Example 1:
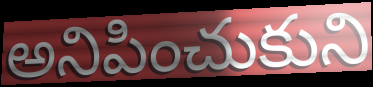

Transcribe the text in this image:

అనిపించుకుని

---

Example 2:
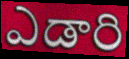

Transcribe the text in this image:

ఎడారి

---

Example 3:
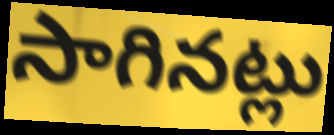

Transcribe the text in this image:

సాగినట్లు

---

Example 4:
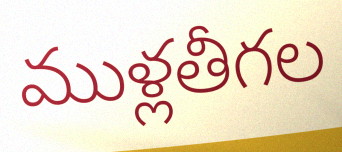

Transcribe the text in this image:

ముళ్లతీగల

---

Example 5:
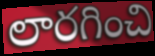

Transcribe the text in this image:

లారగించి